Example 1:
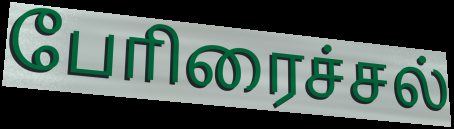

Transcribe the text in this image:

பேரிரைச்சல்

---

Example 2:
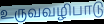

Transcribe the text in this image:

உருவவழிபாடு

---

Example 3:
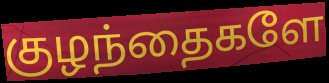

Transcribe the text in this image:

குழந்தைகளே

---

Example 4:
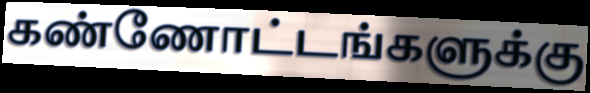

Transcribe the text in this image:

கண்ணோட்டங்களுக்கு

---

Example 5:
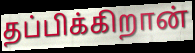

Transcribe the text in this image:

தப்பிக்கிறான்